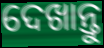
ଦେଖାନ୍ତୁ